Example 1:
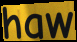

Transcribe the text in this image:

haw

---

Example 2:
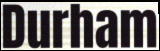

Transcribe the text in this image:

Durham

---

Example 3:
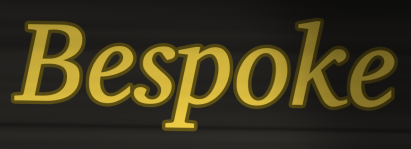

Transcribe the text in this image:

Bespoke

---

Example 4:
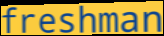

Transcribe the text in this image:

freshman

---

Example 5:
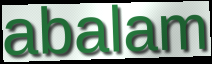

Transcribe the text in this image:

abalam